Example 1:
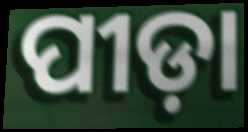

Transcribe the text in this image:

ପୀଡ଼ା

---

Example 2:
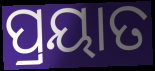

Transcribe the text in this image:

ପ୍ରୟାତ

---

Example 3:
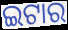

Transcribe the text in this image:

ଇଟାର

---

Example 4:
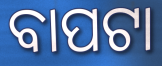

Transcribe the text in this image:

ବାପଟା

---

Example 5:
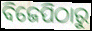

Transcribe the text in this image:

ବିଜେପିଠାରୁ